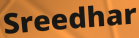
Sreedhar